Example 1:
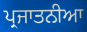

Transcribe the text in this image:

ਪ੍ਰਜਾਤਨੀਆ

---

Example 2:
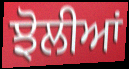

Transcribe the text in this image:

ਝੋਲੀਆਂ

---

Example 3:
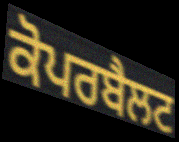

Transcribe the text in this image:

ਕੋਪਰਬੈਲਟ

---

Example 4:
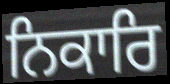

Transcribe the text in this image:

ਨਿਕਾਰਿ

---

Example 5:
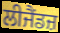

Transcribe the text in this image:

ਲੀਜੈਂਡਜ਼